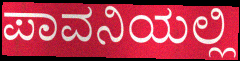
ಪಾವನಿಯಲ್ಲಿ